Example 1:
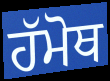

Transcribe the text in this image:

ਹੱਮੋਥ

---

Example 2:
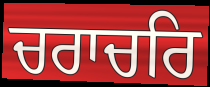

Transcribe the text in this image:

ਚਰਾਚਰਿ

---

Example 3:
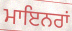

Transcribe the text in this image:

ਮਾਇਨਰਾਂ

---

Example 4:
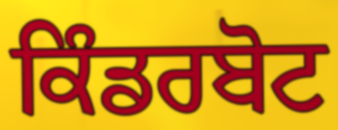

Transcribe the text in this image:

ਕਿੰਡਰਬੋਟ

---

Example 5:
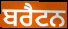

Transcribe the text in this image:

ਬਰੈਟਨ